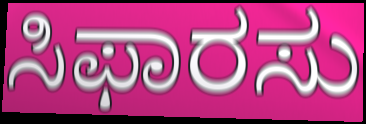
ಸಿಫಾರಸು